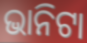
ଭାନିଟା